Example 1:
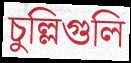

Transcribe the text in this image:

চুল্লিগুলি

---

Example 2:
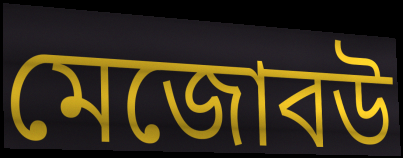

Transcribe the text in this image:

মেজোবউ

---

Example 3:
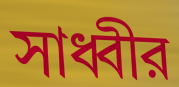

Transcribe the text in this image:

সাধ্বীর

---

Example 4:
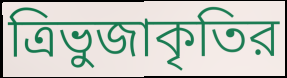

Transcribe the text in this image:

ত্রিভুজাকৃতির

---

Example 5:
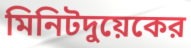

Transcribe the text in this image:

মিনিটদুয়েকের